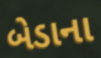
બેડાના